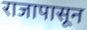
राजापासून